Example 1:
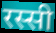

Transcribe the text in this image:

रस्‍सी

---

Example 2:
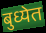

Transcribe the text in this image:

बुध्येत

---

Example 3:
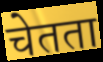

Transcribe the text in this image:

चेतता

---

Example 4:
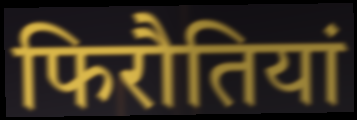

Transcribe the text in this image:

फिरौतियां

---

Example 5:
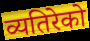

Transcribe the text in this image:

व्यतिरेको